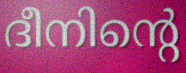
ദീനിന്റെ